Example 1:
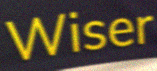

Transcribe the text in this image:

Wiser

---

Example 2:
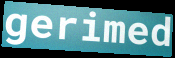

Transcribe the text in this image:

gerimed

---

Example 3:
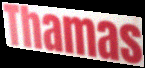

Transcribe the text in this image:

Thamas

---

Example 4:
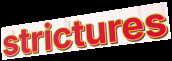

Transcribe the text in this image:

strictures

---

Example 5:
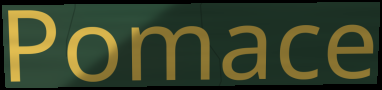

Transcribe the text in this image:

Pomace